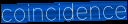
coincidence